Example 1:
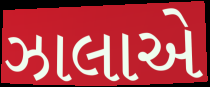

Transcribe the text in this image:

ઝાલાએ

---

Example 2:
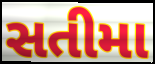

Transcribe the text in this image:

સતીમા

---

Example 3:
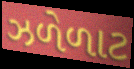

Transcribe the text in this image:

ઝળેળાટ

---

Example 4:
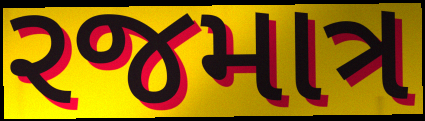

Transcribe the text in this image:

રજમાત્ર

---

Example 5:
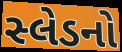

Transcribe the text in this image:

સ્લેડનો